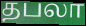
தபலா